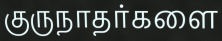
குருநாதர்களை